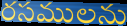
రసములను